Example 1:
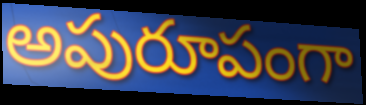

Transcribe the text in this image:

అపురూపంగా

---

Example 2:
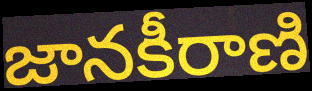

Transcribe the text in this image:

జానకీరాణి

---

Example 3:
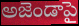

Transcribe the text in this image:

అజెండాపై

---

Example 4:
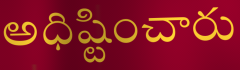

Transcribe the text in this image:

అధిష్టించారు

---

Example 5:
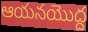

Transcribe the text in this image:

ఆయనయొద్ద